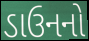
ડાઉનનો